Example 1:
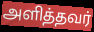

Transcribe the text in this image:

அளித்தவர்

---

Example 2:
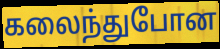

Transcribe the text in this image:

கலைந்துபோன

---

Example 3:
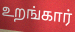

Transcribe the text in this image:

உறங்கார்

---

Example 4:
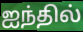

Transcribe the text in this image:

ஐந்தில்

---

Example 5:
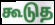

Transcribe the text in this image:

கூடுத